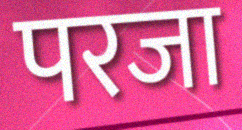
परजा